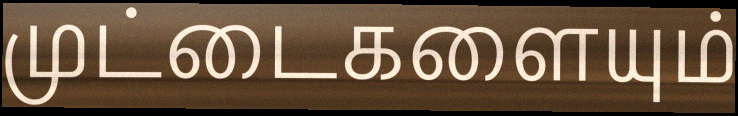
முட்டைகளையும்